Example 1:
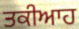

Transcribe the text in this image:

ਤਕੀਆਹ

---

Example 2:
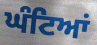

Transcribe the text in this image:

ਘੰਟਿਆਂ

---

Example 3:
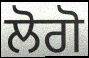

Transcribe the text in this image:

ਲੋਗੋ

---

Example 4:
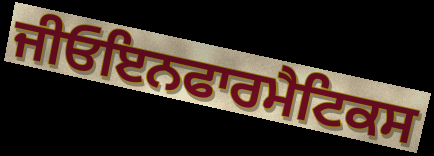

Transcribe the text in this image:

ਜੀਓਇਨਫਾਰਮੈਟਿਕਸ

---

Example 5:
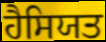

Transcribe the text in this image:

ਹੈਸਿਯਤ